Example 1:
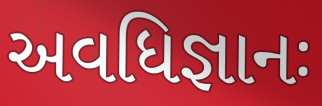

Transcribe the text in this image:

અવધિજ્ઞાનઃ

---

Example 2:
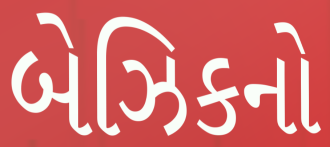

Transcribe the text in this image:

બેઝિકનો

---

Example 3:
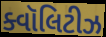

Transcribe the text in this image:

ક્વૉલિટીઝ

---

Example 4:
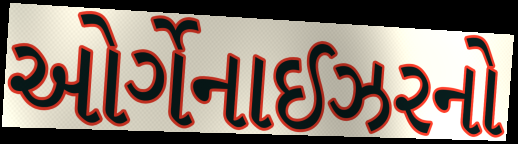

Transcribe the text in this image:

ઓર્ગેનાઈઝરનો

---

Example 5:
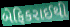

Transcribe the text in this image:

બેફિકરાઈથી